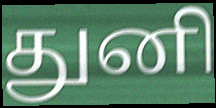
துனி